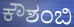
ಕೌಶಂಬಿ